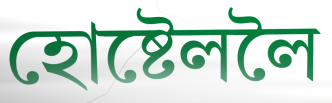
হোষ্টেললৈ